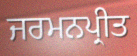
ਜਰਮਨਪ੍ਰੀਤ